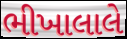
ભીખાલાલે